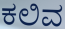
ಕಲಿವ